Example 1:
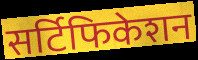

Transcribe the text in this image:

सर्टिफिकेशन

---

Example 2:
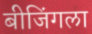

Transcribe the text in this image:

बीजिंगला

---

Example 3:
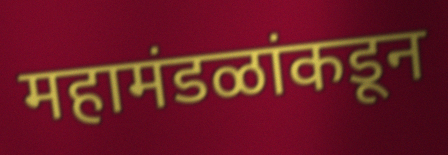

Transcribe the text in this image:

महामंडळांकडून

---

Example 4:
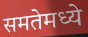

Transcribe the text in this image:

समतेमध्ये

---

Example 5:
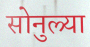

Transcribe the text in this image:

सोनुल्या